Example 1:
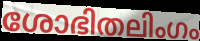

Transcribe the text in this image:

ശോഭിതലിംഗം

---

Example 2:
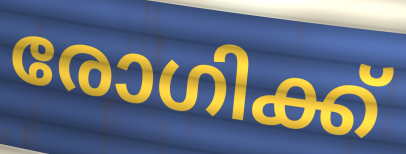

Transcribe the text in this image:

രോഗിക്ക്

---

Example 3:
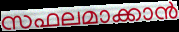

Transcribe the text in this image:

സഫലമാക്കാൻ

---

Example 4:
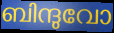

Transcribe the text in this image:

ബിന്ദുവോ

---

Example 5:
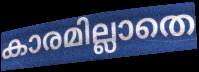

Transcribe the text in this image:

കാരമില്ലാതെ